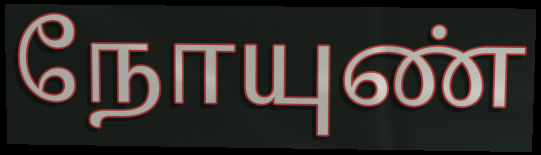
நோயுண்